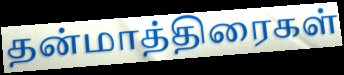
தன்மாத்திரைகள்